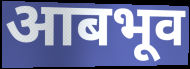
आबभूव